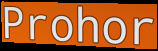
Prohor